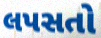
લપસતો